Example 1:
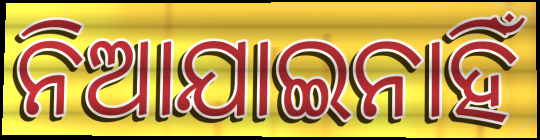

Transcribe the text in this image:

ନିଆଯାଇନାହିଁ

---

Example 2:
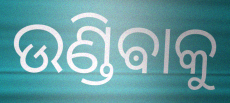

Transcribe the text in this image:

ଉଣ୍ଡିଵାକୁ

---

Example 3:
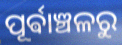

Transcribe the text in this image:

ପୂର୍ଵାଞ୍ଚଳରୁ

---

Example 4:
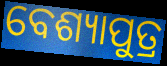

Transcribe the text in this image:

ବେଶ୍ୟାପୁତ୍ର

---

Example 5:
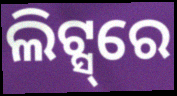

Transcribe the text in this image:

ଲିଟ୍ସ୍‌ରେ